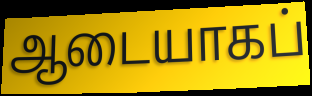
ஆடையாகப்